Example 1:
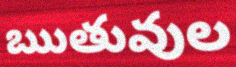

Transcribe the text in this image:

ఋతువుల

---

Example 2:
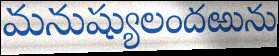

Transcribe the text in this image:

మనుష్యులందఱును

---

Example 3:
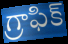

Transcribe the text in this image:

గ్రాఫిక్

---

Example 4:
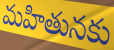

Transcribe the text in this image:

మహితునకు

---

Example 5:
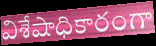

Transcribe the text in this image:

విశేషాధికారంగా